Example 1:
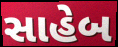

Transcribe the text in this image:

સાહેબ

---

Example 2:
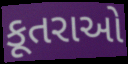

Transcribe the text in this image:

કૂતરાઓ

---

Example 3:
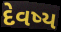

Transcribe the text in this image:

દેવષ્ય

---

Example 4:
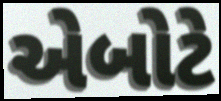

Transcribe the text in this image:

એબોટે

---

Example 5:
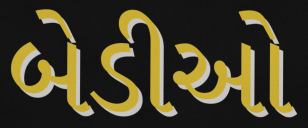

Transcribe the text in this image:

બેડીઓ